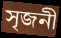
সৃজনী